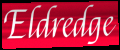
Eldredge